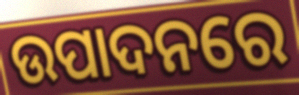
ଉପାଦନରେ